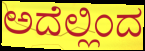
ಅದೆಲ್ಲಿಂದ